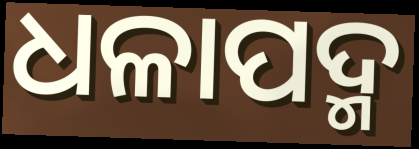
ଧଳାପଦ୍ମ